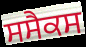
ਸਸੈਕਸ